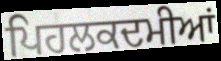
ਪਿਹਲਕਦਮੀਆਂ